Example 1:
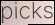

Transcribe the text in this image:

picks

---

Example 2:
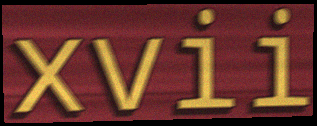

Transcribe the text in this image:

xvii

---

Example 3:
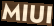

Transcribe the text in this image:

MIUI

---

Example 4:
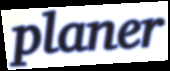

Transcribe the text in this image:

planer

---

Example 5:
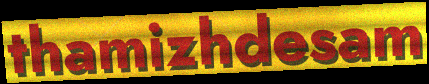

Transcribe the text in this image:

thamizhdesam